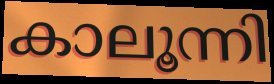
കാലൂന്നി